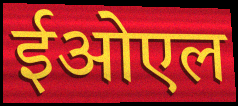
ईओएल